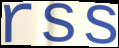
rss